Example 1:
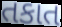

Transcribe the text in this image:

તકાત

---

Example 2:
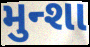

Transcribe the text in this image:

મુન્શા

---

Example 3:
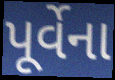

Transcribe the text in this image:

પૂર્વેના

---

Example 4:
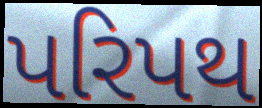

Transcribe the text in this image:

પરિપથ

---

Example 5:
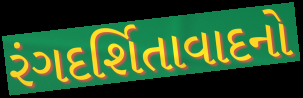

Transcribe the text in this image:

રંગદર્શિતાવાદનો